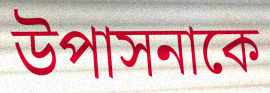
উপাসনাকে